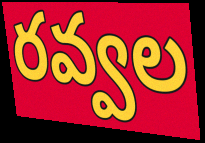
రవ్వల